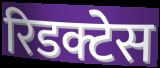
रिडक्टेस